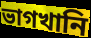
ভাগখানি